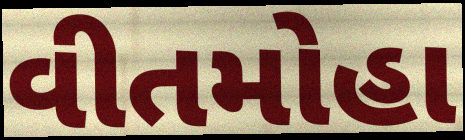
વીતમોહા